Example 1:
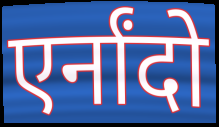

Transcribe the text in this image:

एर्नांदो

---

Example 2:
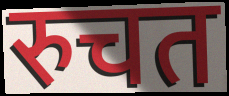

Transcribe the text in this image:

रुचत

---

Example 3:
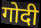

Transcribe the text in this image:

गोदी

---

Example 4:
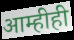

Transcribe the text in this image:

आम्हीही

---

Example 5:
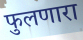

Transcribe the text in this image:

फुलणारा